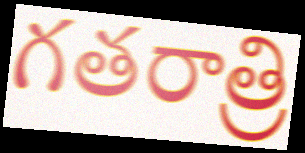
గతరాత్రి